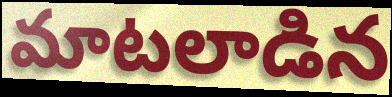
మాటలాడిన